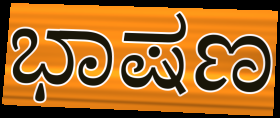
ಭಾಷಣ